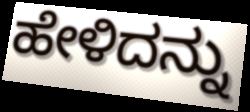
ಹೇಳಿದನ್ನು